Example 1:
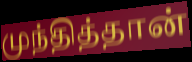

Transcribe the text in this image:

முந்தித்தான்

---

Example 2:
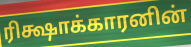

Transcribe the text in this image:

ரிக்ஷாக்காரனின்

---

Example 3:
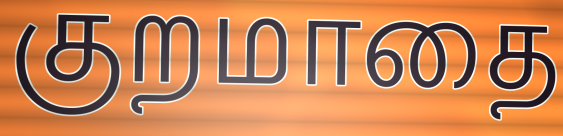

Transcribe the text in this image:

குறமாதை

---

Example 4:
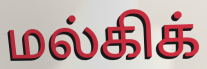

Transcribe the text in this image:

மல்கிக்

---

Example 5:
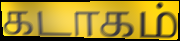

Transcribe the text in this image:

கடாகம்